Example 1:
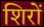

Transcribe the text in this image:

शिरों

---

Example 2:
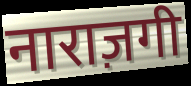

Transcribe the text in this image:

नाराज़गी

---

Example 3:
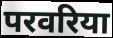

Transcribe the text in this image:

परवरिया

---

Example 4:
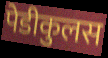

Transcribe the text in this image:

पेडीकुलस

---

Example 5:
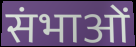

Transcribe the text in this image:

संभाओं